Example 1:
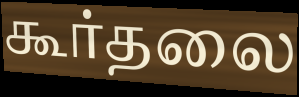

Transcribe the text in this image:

கூர்தலை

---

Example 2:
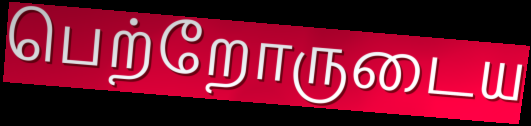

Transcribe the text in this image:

பெற்றோருடைய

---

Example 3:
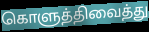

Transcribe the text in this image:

கொளுத்திவைத்து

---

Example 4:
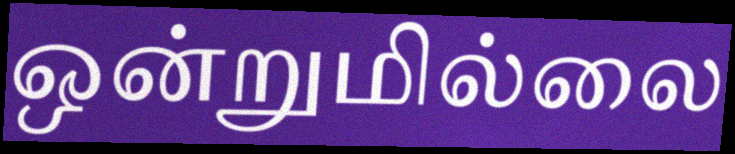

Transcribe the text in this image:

ஒன்றுமில்லை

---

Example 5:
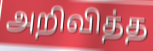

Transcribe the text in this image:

அறிவித்த